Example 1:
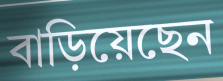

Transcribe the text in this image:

বাড়িয়েছেন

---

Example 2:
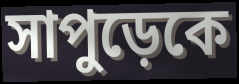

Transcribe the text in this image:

সাপুড়েকে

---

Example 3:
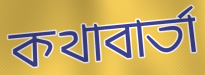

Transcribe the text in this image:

কথাবার্তা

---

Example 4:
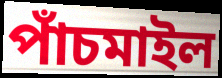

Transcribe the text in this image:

পাঁচমাইল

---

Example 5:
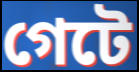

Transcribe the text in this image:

গেটে